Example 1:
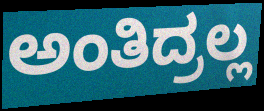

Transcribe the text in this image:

ಅಂತಿದ್ರಲ್ಲ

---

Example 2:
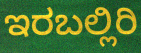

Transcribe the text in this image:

ಇರಬಲ್ಲಿರಿ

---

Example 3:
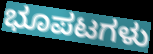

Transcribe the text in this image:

ಭೂಪಟಗಳು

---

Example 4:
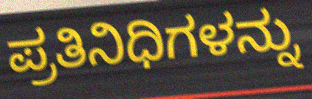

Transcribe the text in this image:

ಪ್ರತಿನಿಧಿಗಳನ್ನು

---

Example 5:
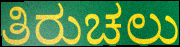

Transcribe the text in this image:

ತಿರುಚಲು